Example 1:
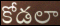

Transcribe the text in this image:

కోడలా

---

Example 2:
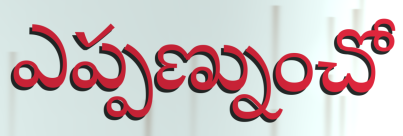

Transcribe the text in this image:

ఎప్పణ్నుంచో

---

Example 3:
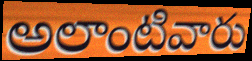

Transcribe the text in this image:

అలాంటివారు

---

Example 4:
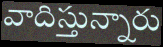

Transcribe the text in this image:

వాదిస్తున్నారు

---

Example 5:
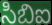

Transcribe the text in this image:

సిబిఐ